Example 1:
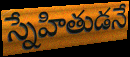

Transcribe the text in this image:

స్నేహితుడనే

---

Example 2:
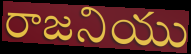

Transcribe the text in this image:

రాజనియు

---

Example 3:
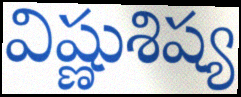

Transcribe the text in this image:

విష్ణుశిష్య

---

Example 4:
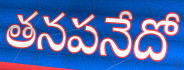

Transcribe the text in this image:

తనపనేదో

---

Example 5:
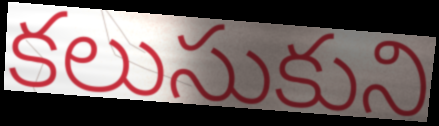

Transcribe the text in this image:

కలుసుకుని